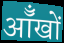
ऑँखों